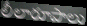
లీలారూపాలు